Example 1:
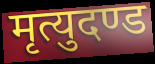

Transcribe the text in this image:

मृत्युदण्ड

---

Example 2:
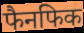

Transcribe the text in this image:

फैनफिक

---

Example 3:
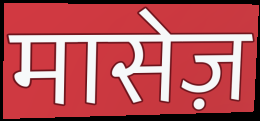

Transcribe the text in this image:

मासेज़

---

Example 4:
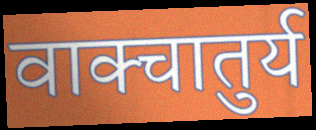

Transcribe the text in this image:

वाक्चातुर्य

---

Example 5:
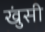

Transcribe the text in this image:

खुंसी